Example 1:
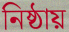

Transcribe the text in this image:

নিষ্ঠায়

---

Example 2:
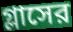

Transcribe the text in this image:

গ্লাসের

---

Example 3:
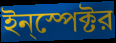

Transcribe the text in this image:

ইন্‌স্পেক্টর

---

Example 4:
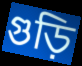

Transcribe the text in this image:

গুড়ি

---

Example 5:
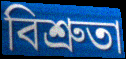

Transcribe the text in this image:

বিশ্রুতা